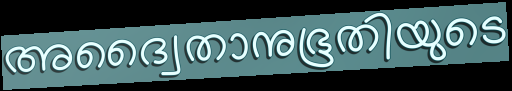
അദ്വൈതാനുഭൂതിയുടെ